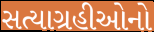
સત્યાગ્રહીઓનો